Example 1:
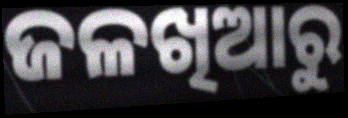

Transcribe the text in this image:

ଜଳଖିଆରୁ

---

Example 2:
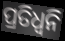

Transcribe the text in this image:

ପ୍ରତିଧ୍ବନି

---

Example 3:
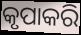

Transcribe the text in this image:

କୃପାକରି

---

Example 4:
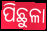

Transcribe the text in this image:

ପିଛୁଳା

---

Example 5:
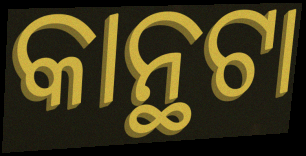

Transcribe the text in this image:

କାନ୍ଥଟା